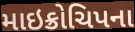
માઇક્રોચિપના